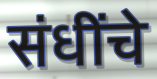
संधींचे